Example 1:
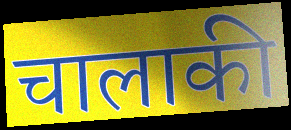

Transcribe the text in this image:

चालाकी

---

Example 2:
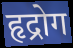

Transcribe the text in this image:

हृद्रोग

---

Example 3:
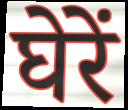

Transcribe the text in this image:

घेरें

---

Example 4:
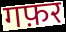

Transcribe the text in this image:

गफ़र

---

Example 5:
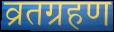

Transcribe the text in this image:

व्रतग्रहण